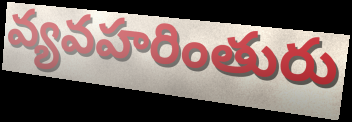
వ్యవహరింతురు